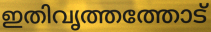
ഇതിവൃത്തത്തോട്